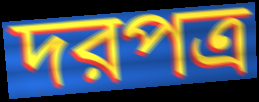
দরপত্র